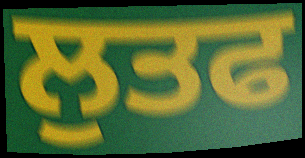
ਲੁਤਫ